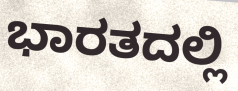
ಭಾರತದಲ್ಲಿ